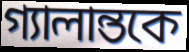
গ্যালান্তকে